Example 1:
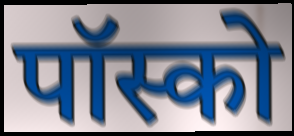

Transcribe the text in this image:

पॉस्‍को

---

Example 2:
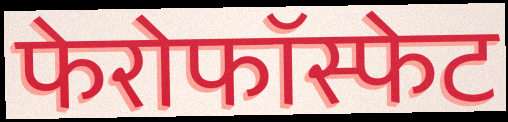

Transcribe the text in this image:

फेरोफॉस्फेट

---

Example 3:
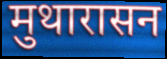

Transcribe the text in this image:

मुथारासन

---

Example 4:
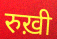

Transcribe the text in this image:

रुख़ी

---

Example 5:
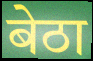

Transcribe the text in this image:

बेठा